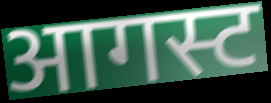
आगस्ट